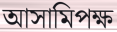
আসামিপক্ষ